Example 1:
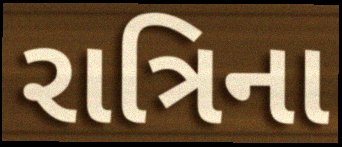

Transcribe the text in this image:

રાત્રિના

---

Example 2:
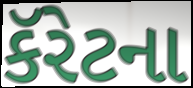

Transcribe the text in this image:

કૅરેટના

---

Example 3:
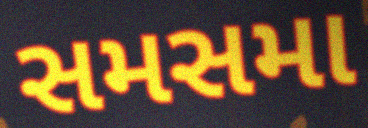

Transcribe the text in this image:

સમસમા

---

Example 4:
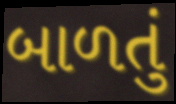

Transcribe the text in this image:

બાળતું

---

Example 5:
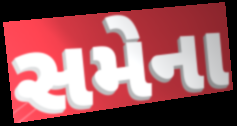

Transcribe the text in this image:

સમેના